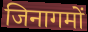
जिनागमों